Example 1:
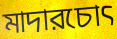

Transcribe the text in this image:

মাদারচোৎ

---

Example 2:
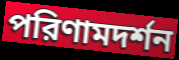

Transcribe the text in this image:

পরিণামদর্শন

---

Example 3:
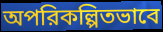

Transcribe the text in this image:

অপরিকল্পিতভাবে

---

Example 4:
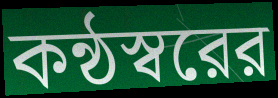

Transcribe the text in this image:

কন্ঠস্বরের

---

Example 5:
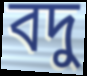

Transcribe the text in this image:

বদু